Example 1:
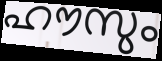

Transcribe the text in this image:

ഹൗസും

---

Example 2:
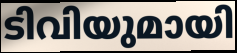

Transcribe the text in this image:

ടിവിയുമായി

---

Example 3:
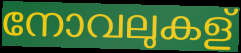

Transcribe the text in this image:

നോവലുകള്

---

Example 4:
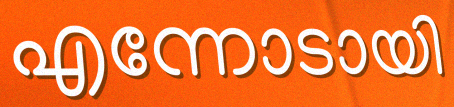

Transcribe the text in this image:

എന്നോടായി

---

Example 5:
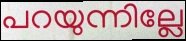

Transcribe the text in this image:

പറയുന്നില്ലേ